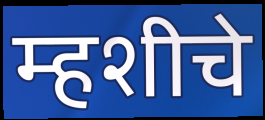
म्हशीचे